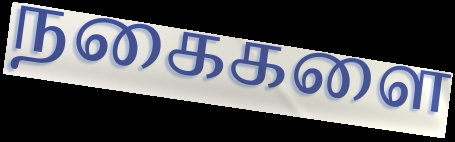
நகைகளை